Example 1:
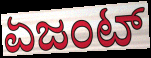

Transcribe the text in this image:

ಏಜಂಟ್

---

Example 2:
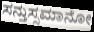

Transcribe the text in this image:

ಸನ್ತುಸ್ಸಮಾನೋ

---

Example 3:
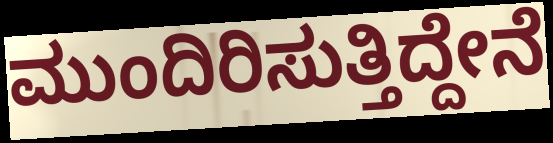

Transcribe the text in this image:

ಮುಂದಿರಿಸುತ್ತಿದ್ದೇನೆ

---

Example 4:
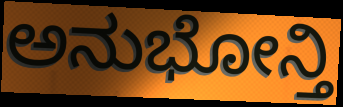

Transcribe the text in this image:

ಅನುಭೋನ್ತಿ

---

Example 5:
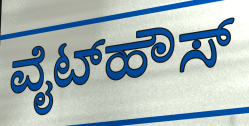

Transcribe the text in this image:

ವೈಟ್‌ಹೌಸ್